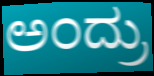
ಅಂದ್ರು